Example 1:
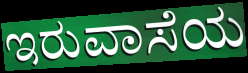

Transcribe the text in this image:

ಇರುವಾಸೆಯ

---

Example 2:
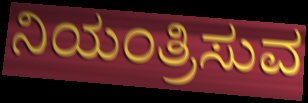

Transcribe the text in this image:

ನಿಯಂತ್ರಿಸುವ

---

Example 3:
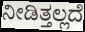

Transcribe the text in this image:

ನೀಡಿತ್ತಲ್ಲದೆ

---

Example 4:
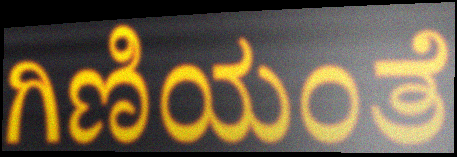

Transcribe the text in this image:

ಗಿಣಿಯಂತೆ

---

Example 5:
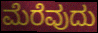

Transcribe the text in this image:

ಮೆರೆವುದು